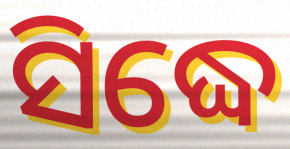
ସିଦ୍ଧେ